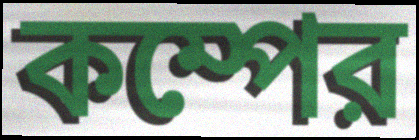
কম্পের